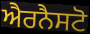
ਐਰਨੈਸਟੋ